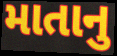
માતાનુ